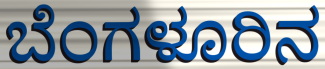
ಬೆಂಗಳೂರಿನ